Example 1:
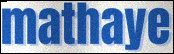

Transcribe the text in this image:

mathaye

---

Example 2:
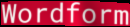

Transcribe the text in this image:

Wordform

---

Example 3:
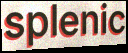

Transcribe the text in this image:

splenic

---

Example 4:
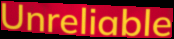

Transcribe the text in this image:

Unreliable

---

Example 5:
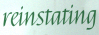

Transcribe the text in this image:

reinstating